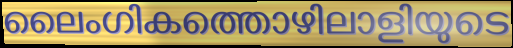
ലൈംഗികത്തൊഴിലാളിയുടെ